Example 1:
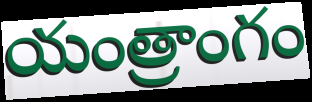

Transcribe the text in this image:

యంత్రాంగం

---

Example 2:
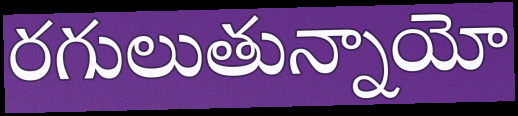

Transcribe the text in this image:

రగులుతున్నాయో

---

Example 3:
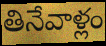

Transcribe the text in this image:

తినేవాళ్లం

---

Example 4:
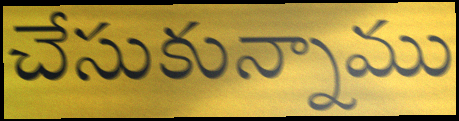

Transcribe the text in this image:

చేసుకున్నాము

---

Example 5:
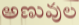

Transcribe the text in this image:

అణువుల